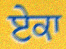
ਏਕਾ